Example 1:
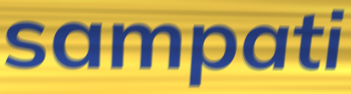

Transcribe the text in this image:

sampati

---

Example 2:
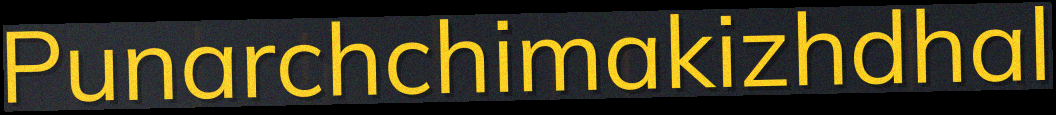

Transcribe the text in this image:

Punarchchimakizhdhal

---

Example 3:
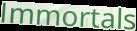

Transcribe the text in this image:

Immortals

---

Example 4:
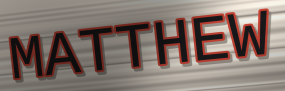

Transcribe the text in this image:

MATTHEW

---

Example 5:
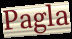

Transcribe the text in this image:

Pagla